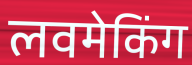
लवमेकिंग